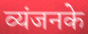
व्यंजनके